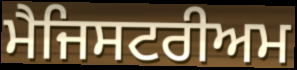
ਮੈਜਿਸਟਰੀਅਮ